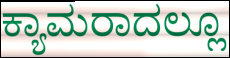
ಕ್ಯಾಮರಾದಲ್ಲೂ